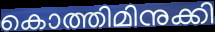
കൊത്തിമിനുക്കി